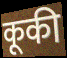
कूकी